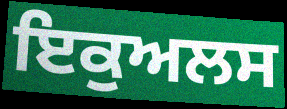
ਇਕੁਅਲਸ